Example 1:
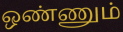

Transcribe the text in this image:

ஒண்ணும்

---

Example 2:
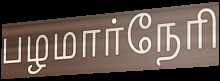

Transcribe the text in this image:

பழமார்நேரி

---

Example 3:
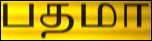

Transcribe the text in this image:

பதமா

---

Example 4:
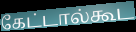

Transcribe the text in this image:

கேட்டால்கூட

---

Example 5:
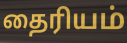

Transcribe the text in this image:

தைரியம்